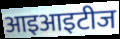
आइआइटीज